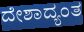
ದೇಶಾದ್ಯಂತ